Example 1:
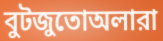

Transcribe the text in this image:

বুটজুতোঅলারা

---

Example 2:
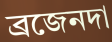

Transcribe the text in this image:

ব্রজেনদা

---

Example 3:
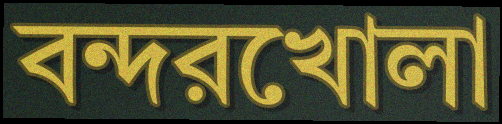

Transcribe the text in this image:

বন্দরখোলা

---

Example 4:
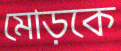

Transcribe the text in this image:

মোড়কে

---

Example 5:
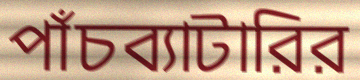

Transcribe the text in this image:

পাঁচব্যাটারির